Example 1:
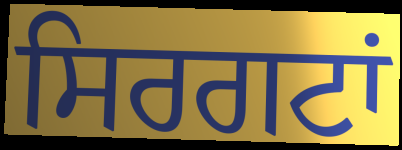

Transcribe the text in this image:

ਸਿਰਗਟਾਂ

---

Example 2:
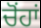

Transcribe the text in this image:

ਚੋਂਹਾਂ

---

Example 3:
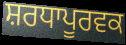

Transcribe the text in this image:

ਸ਼ਰਧਾਪੂਰਵਕ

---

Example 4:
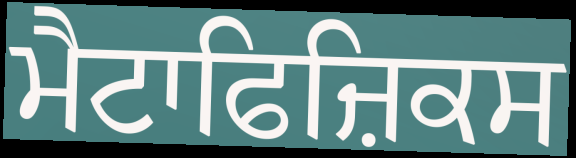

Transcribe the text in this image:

ਮੈਟਾਫਿਜ਼ਿਕਸ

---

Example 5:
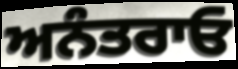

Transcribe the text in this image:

ਅਨੰਤਰਾਓ